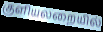
குளியலறையில்